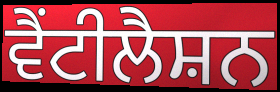
ਵੈਂਟੀਲੈਸ਼ਨ